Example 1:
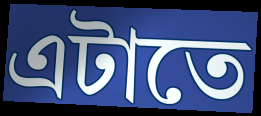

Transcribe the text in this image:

এটাতে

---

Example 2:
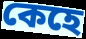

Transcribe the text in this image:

কেহে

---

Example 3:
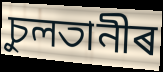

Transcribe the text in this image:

চুলতানীৰ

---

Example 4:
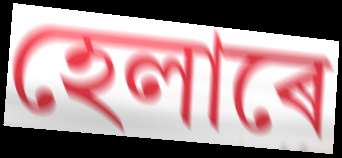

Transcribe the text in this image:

হেলাৰে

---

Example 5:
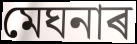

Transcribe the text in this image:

মেঘনাৰ